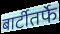
बार्टीतर्फे